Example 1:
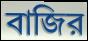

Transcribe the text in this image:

বাজির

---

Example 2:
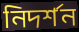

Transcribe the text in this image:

নিদর্শন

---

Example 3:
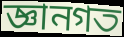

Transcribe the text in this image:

জ্ঞানগত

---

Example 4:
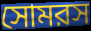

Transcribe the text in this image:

সোমরস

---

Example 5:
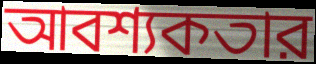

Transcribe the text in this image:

আবশ্যকতার